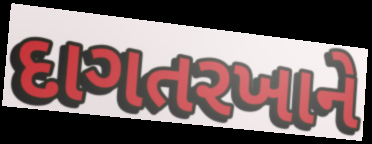
દાગતરખાને